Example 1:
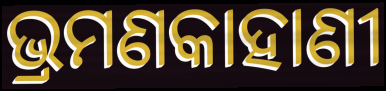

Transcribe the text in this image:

ଭ୍ରମଣକାହାଣୀ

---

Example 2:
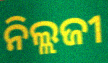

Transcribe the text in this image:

ନିଲ୍ଲଜୀ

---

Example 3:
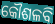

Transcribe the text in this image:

କୌଶଳବି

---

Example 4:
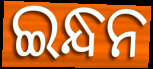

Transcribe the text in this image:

ଇନ୍ଧନ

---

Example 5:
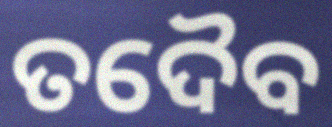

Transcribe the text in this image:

ତଦୈବ